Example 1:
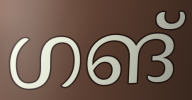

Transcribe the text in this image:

ഗങ്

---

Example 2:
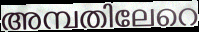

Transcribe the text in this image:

അമ്പതിലേറെ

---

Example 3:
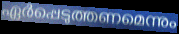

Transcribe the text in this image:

ഏർപ്പെടുത്തണമെന്നും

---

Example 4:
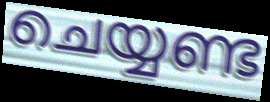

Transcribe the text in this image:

ചെയ്യണ്ട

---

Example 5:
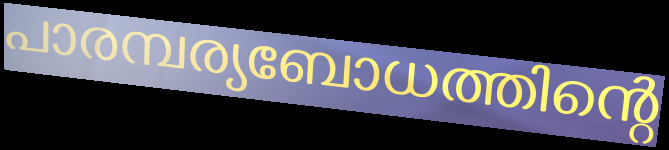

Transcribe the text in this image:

പാരമ്പര്യബോധത്തിന്റെ